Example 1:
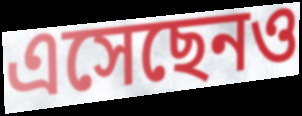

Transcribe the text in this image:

এসেছেনও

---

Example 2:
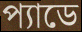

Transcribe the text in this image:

প্যাডে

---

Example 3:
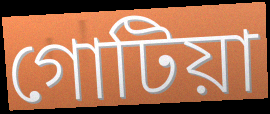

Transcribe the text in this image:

গোটিয়া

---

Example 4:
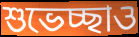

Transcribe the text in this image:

শুভেচ্ছাও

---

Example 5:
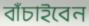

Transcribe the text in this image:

বাঁচাইবেন